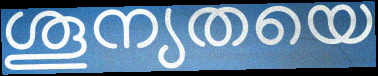
ശൂന്യതയെ